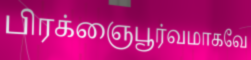
பிரக்ஞைபூர்வமாகவே